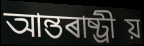
আন্তৰাষ্ট্ৰীয়